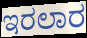
ಇರಲಾರ